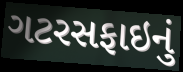
ગટરસફાઇનું